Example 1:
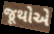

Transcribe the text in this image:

જૂથોએ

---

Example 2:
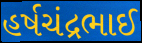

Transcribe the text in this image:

હર્ષચંદ્રભાઈ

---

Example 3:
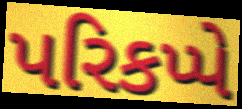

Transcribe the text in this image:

પરિકપ્પે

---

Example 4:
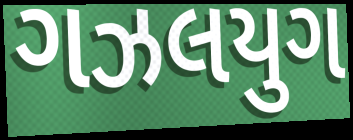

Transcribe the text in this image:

ગઝલયુગ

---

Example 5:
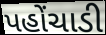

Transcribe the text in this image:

પહોંચાડી